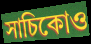
সাচিকোও